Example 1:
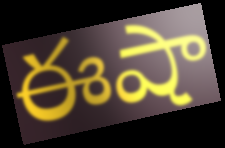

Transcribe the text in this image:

ఈషా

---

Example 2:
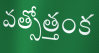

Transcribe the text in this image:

వత్సోత్తంక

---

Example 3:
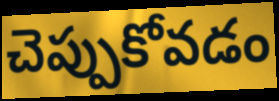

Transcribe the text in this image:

చెప్పుకోవడం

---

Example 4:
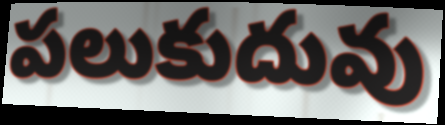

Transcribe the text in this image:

పలుకుదువు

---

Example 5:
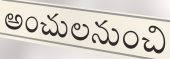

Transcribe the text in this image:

అంచులనుంచి